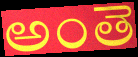
అంతె